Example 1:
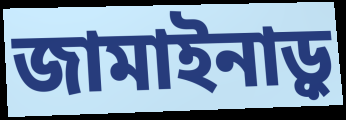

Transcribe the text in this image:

জামাইনাড়ু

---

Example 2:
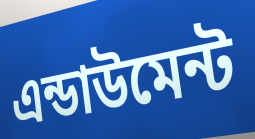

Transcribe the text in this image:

এন্ডাউমেন্ট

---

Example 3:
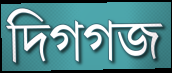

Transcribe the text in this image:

দিগগজ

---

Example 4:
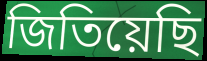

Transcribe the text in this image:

জিতিয়েছি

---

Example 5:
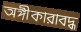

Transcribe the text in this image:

অঙ্গীকারাবদ্ধ